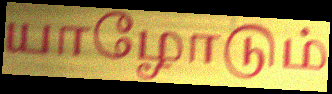
யாழோடும்